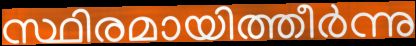
സ്ഥിരമായിത്തീർന്നു